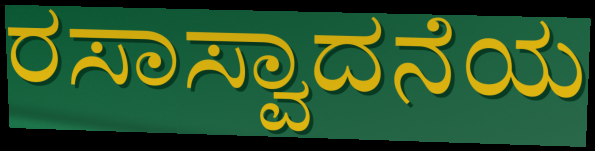
ರಸಾಸ್ವಾದನೆಯ